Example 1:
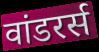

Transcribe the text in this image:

वांडरर्स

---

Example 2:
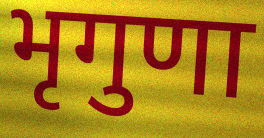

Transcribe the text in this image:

भृगुणा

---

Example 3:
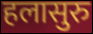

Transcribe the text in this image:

हलासुरु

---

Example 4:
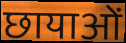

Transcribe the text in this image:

छायाओं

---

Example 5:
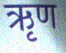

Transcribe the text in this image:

ऋृण